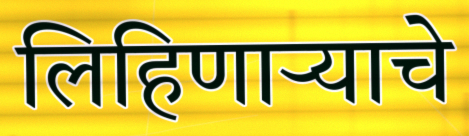
लिहिणाऱ्याचे